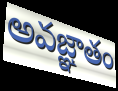
అవజ్ఞాతం